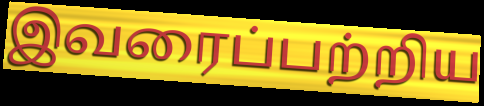
இவரைப்பற்றிய